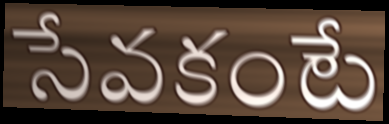
సేవకంటే